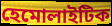
হেমোলাইটিক